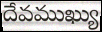
దేవముఖ్యు